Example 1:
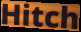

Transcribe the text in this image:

Hitch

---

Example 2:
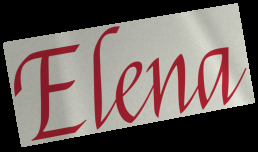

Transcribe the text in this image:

Elena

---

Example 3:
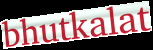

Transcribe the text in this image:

bhutkalat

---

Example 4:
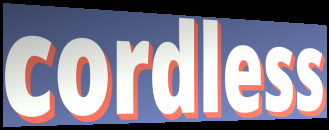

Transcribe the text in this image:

cordless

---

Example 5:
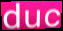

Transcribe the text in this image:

duc